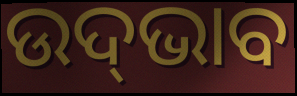
ଉଦ୍‍ଭାବ